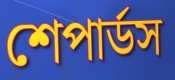
শেপার্ডস